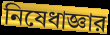
নিষেধাজ্ঞার